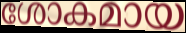
ശോകമായ